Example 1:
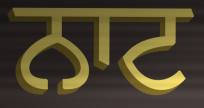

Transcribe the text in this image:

ਨਾਟ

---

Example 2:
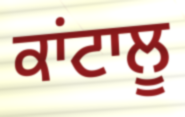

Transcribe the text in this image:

ਕਾਂਟਾਲੂ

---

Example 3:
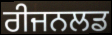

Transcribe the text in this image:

ਰੀਜਨਲਡ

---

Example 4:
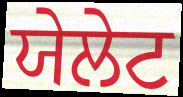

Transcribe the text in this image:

ਯੇਲੇਟ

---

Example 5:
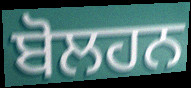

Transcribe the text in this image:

ਬੋਲਹਨ